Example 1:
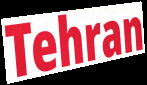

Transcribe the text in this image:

Tehran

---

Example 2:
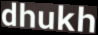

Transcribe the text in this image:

dhukh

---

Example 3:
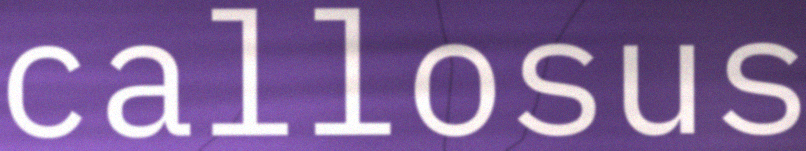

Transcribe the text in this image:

callosus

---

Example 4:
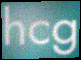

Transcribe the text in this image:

hcg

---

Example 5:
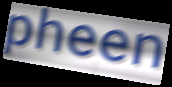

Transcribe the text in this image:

pheen